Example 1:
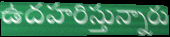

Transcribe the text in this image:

ఉదహరిస్తున్నారు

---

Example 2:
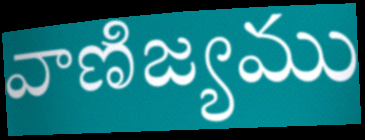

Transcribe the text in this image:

వాణిజ్యము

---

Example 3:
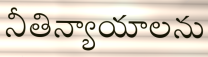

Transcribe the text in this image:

నీతిన్యాయాలను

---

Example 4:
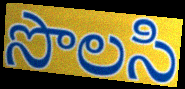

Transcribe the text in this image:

సొలసి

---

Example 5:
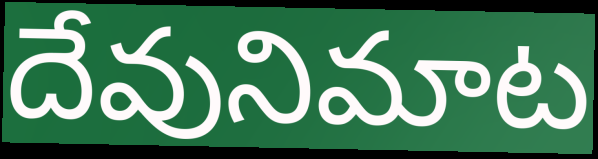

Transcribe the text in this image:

దేవునిమాట